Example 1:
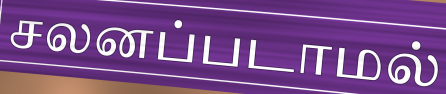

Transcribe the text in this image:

சலனப்படாமல்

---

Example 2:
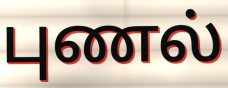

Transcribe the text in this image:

புணல்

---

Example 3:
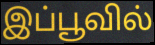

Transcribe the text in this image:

இப்பூவில்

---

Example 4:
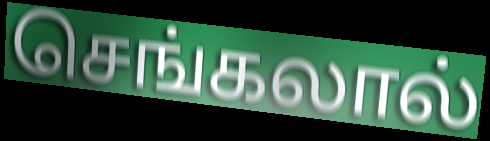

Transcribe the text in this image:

செங்கலால்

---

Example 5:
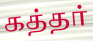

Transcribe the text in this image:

கத்தர்